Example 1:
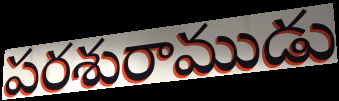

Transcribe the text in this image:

పరశురాముడు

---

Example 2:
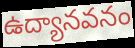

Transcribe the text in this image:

ఉద్యానవనం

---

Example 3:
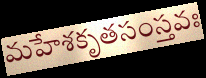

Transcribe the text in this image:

మహేశకృతసంస్తవః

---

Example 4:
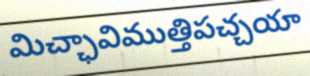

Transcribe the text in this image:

మిచ్ఛావిముత్తిపచ్చయా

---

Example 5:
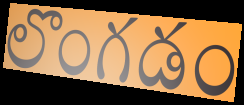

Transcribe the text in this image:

లొంగడం